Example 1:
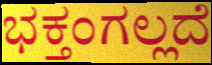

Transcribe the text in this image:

ಭಕ್ತಂಗಲ್ಲದೆ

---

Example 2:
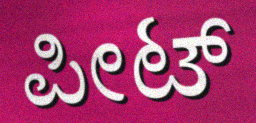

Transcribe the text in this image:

ಪೀಟ್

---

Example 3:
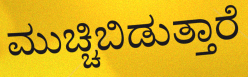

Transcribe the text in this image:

ಮುಚ್ಚಿಬಿಡುತ್ತಾರೆ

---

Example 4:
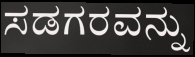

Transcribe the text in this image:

ಸಡಗರವನ್ನು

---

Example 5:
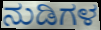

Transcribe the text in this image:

ನುಡಿಗಳ